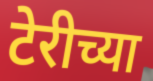
टेरीच्या